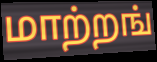
மாற்றங்